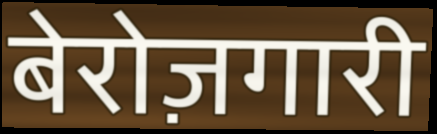
बेरोज़गारी